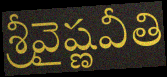
శ్రీవైష్ణవీతి